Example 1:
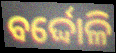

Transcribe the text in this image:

ବର୍ଦ୍ଦୋଳି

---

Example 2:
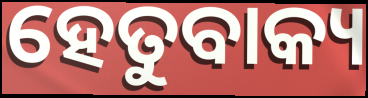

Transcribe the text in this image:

ହେତୁବାକ୍ୟ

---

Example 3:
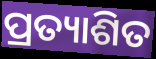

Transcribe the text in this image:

ପ୍ରତ୍ୟାଶିତ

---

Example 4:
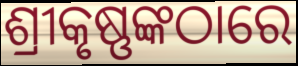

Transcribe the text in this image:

ଶ୍ରୀକୃଷ୍ଣଙ୍କଠାରେ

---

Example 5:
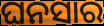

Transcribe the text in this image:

ଘନସାର